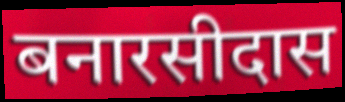
बनारसीदास